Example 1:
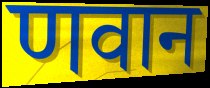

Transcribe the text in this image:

णवान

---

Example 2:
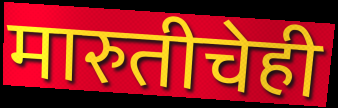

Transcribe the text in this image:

मारुतीचेही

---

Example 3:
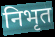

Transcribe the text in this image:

निभृत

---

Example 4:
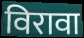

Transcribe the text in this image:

विरावा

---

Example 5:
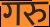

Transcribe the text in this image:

गरु